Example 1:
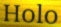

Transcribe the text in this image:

Holo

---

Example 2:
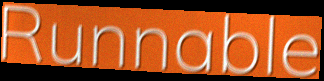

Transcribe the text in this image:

Runnable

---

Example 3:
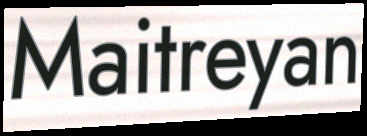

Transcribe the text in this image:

Maitreyan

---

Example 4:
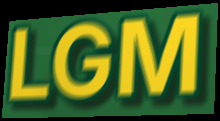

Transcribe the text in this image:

LGM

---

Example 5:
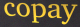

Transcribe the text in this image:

copay